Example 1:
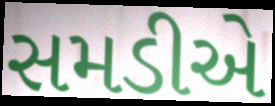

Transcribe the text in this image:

સમડીએ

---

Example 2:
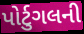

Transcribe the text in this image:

પોર્ટુગલની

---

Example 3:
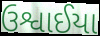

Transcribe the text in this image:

ઉશ્વાઈયા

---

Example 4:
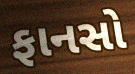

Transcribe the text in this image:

ફાનસો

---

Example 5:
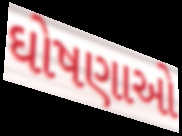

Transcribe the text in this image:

ઘોષણાઓ